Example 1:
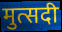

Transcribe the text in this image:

मुत्सदी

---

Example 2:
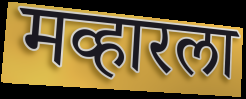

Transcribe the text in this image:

मव्हारला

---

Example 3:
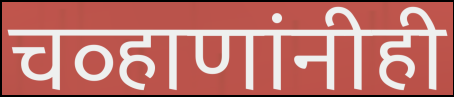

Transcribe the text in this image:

चव्हाणांनीही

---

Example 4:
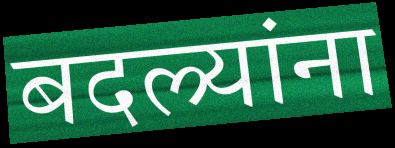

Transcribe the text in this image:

बदल्यांना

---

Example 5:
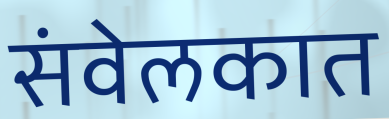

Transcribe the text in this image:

संवेलकात